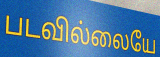
படவில்லையே